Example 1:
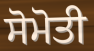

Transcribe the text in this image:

ਸੋਮੋਤੀ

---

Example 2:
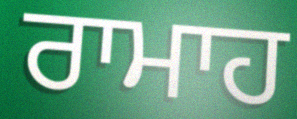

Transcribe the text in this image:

ਰਾਮਾਹ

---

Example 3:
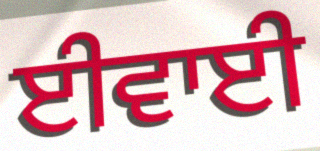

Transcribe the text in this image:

ਈਵਾਈ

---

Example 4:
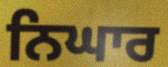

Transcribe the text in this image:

ਨਿਘਾਰ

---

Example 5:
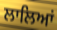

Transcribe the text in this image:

ਲਾਲਿਆਂ